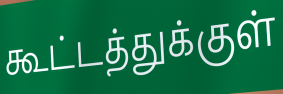
கூட்டத்துக்குள்